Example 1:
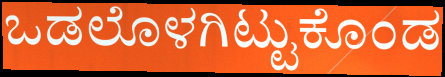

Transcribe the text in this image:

ಒಡಲೊಳಗಿಟ್ಟುಕೊಂಡ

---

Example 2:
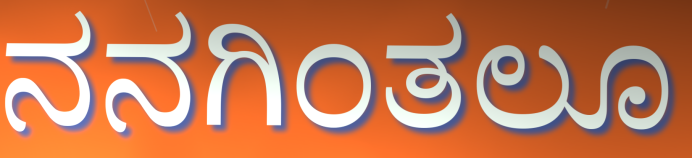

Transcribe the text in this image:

ನನಗಿಂತಲೂ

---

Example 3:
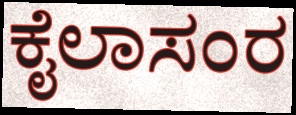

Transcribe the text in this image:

ಕೈಲಾಸಂರ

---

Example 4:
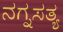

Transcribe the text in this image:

ನಗ್ನಸತ್ಯ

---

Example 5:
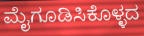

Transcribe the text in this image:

ಮೈಗೂಡಿಸಿಕೊಳ್ಳದ